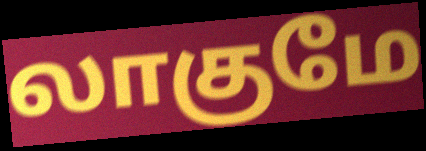
லாகுமே